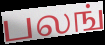
பலங்